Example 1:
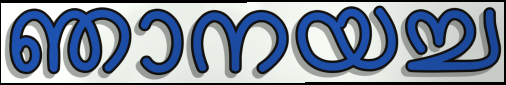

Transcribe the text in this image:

ഞാനയച്ച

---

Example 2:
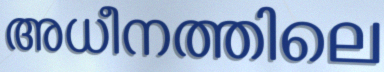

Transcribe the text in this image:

അധീനത്തിലെ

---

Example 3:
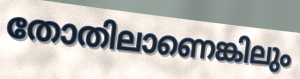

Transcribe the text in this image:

തോതിലാണെങ്കിലും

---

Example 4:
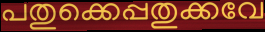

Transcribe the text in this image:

പതുക്കെപ്പതുക്കവേ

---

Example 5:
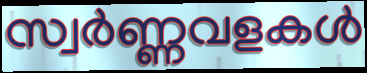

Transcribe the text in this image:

സ്വർണ്ണവളകൾ